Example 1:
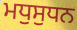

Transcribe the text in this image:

ਮਧੁਸੁਧਨ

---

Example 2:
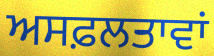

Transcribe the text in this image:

ਅਸਫ਼ਲਤਾਵਾਂ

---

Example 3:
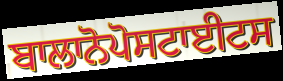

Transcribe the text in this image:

ਬਾਲਾਨੋਪੋਸਟਾਈਟਸ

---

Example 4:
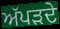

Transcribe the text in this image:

ਅੱਪੜਦੇ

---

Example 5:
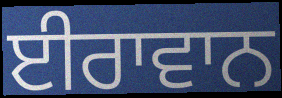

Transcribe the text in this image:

ਈਰਾਵਾਨ